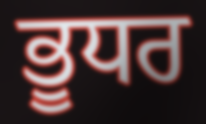
ਭੂਧਰ